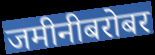
जमीनीबरोबर